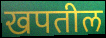
खपतील